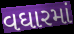
વઘારમાં